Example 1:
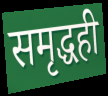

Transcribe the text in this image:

समृद्धही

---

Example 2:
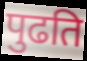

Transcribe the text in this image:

पुढति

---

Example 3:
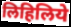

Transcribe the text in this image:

लिहिलिये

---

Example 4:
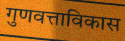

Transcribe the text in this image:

गुणवत्ताविकास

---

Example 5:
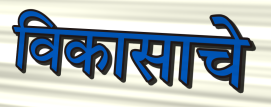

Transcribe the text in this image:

विकासाचे